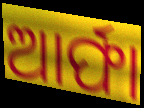
ଆର୍ଫା